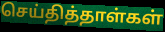
செய்தித்தாள்கள்